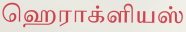
ஹெராக்ளியஸ்